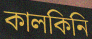
কালকিনি